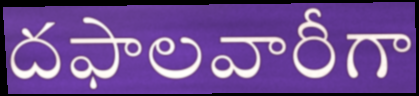
దఫాలవారీగా